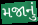
મજાનું